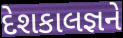
દેશકાલજ્ઞને